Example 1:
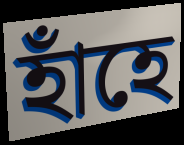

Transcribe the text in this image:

হাঁহে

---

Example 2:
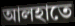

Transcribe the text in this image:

আলহাতে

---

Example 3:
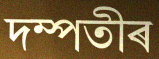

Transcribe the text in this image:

দম্পতীৰ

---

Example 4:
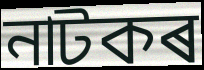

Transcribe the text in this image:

নাটকৰ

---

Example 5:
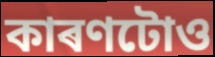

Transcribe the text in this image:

কাৰণটোও